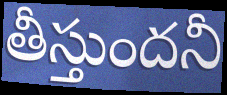
తీస్తుందనీ